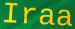
Iraa